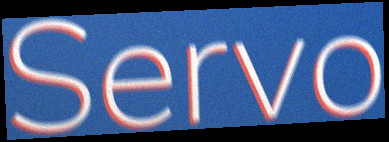
Servo